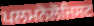
ਪਲਮਨੋਲੋਜਿਸਟ